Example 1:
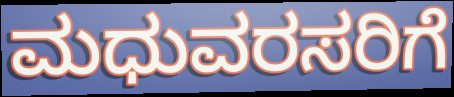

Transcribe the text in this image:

ಮಧುವರಸರಿಗೆ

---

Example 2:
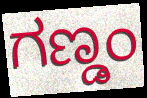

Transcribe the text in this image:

ಗಣ್ಡಂ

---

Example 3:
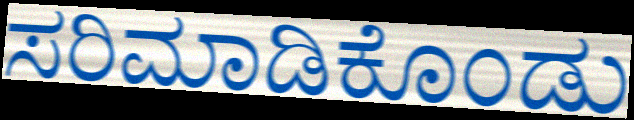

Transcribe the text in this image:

ಸರಿಮಾಡಿಕೊಂಡು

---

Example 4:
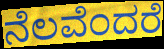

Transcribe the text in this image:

ನೆಲವೆಂದರೆ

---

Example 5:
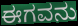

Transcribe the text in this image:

ಈಗವನು